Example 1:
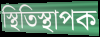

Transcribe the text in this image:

স্থিতিস্থাপক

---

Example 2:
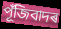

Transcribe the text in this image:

পূঁজিবাদৰ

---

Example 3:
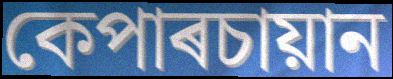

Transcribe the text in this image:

কেপাৰচায়ান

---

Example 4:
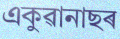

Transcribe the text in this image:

একুৱানাছৰ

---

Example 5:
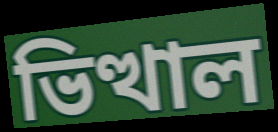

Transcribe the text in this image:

ভিত্থাল